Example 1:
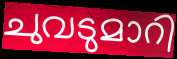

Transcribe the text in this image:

ചുവടുമാറി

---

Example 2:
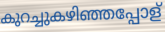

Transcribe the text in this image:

കുറച്ചുകഴിഞ്ഞപ്പോള്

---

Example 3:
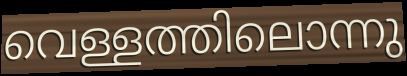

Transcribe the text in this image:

വെള്ളത്തിലൊന്നു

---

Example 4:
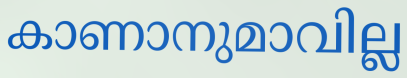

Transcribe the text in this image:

കാണാനുമാവില്ല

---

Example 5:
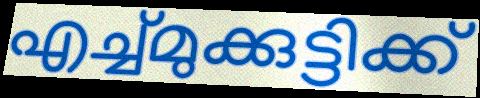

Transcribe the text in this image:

എച്ച്മുക്കുട്ടിക്ക്